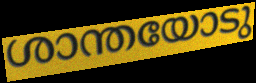
ശാന്തയോടു